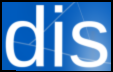
dis